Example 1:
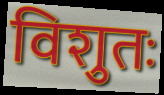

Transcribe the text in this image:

विश्रुतः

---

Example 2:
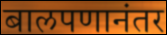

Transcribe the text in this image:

बालपणानंतर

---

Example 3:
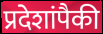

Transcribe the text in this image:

प्रदेशांपैकी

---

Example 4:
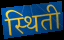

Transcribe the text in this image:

स्थिती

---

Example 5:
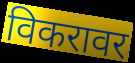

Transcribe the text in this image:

विकरावर